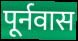
पूर्नवास